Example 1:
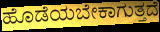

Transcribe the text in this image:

ಹೊಡೆಯಬೇಕಾಗುತ್ತದೆ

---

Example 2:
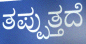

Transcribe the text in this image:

ತಪ್ಪುತ್ತದೆ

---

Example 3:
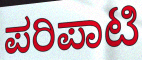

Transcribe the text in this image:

ಪರಿಪಾಟಿ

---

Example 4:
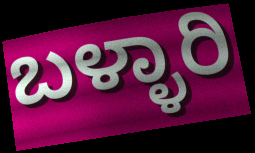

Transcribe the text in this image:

ಬಳ್ಳಾರಿ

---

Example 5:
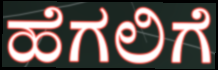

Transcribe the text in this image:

ಹೆಗಲಿಗೆ